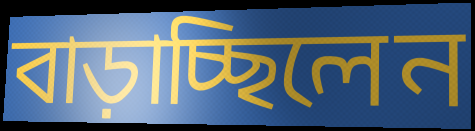
বাড়াচ্ছিলেন